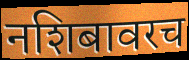
नशिबावरच